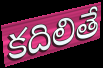
కదిలితే